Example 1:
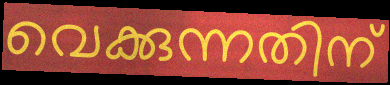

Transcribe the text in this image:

വെക്കുന്നതിന്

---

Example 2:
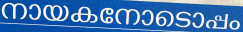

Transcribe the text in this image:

നായകനോടൊപ്പം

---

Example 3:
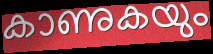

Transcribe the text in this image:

കാണുകയും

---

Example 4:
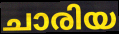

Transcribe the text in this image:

ചാരിയ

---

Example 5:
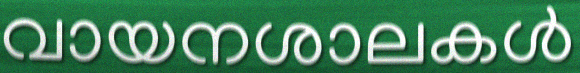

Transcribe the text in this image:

വായനശാലകൾ